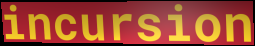
incursion